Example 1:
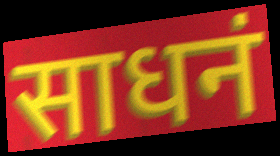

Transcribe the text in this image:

साधनं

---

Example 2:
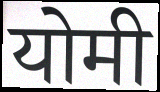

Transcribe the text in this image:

योमी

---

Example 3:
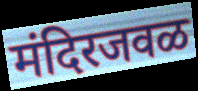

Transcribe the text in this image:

मंदिरजवळ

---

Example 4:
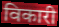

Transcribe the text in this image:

विकारी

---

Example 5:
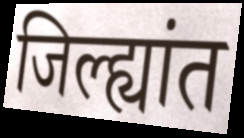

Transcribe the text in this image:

जिल्ह्यांत